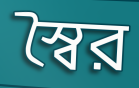
স্বৈর